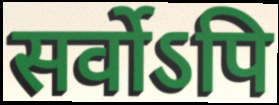
सर्वोऽपि